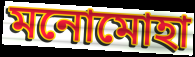
মনোমোহা